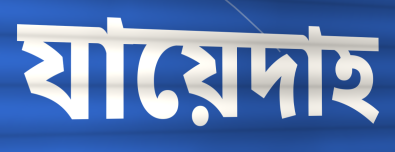
যায়েদাহ